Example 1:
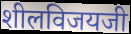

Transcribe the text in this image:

शीलविजयजी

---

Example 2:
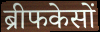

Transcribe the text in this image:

ब्रीफकेसों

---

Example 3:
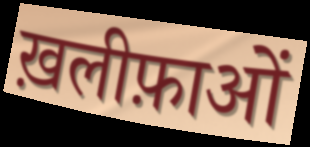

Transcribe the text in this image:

ख़लीफ़ाओं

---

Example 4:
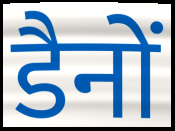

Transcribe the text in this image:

डैनों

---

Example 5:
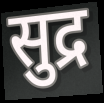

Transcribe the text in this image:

सुद्र